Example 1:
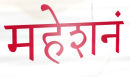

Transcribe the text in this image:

महेशनं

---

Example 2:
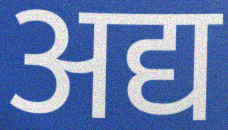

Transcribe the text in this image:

अद्य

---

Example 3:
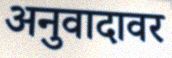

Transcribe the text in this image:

अनुवादावर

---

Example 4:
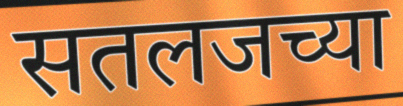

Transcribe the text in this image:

सतलजच्या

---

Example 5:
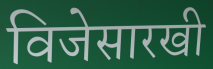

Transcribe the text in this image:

विजेसारखी